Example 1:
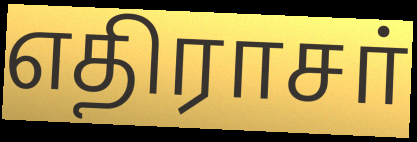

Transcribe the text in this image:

எதிராசர்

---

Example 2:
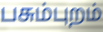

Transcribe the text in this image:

பசும்புறம்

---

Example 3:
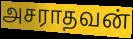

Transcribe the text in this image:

அசராதவன்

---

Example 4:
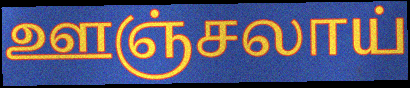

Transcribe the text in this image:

ஊஞ்சலாய்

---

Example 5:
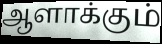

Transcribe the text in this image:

ஆளாக்கும்